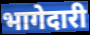
भागेदारी